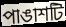
পাঙাশটি